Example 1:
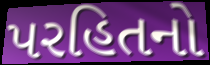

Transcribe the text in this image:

પરહિતનો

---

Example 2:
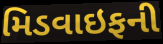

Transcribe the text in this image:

મિડવાઇફની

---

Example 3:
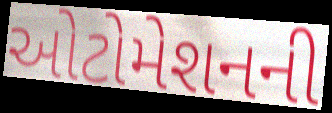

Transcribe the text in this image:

ઓટોમેશનની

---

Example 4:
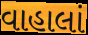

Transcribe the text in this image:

વાહાલાં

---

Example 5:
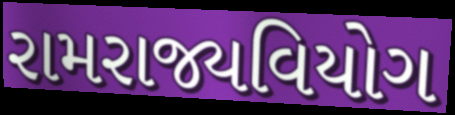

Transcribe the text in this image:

રામરાજ્યવિયોગ